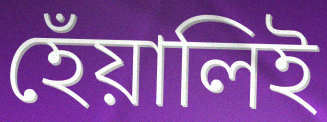
হেঁয়ালিই